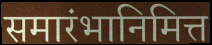
समारंभानिमित्त